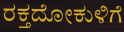
ರಕ್ತದೋಕುಳಿಗೆ